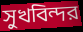
সুখবিন্দর